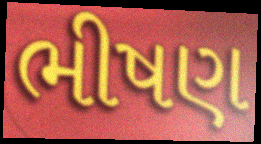
ભીષણ